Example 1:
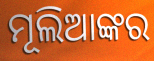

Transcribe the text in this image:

ମୂଲିଆଙ୍କର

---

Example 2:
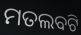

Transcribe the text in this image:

ମତଲବଟି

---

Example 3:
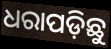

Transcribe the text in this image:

ଧରାପଡ଼ିଛୁ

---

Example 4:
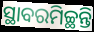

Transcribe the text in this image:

ସ୍ଥାବରମିଚ୍ଛନ୍ତି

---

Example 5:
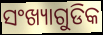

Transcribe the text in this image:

ସଂଖ୍ୟାଗୁଡିକ